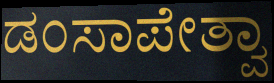
ಡಂಸಾಪೇತ್ವಾ